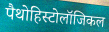
पैथोहिस्टोलॉजिकल